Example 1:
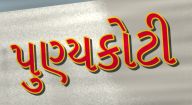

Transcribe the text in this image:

પુણ્યકોટી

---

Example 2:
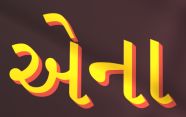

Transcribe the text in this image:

એના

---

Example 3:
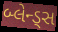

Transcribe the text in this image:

બ્લેન્ડ્સ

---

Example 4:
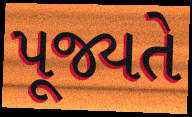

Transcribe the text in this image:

પૂજ્યતે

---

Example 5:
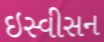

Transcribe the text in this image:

ઇસ્વીસન